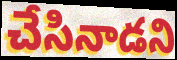
చేసినాడని